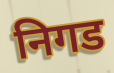
निगड